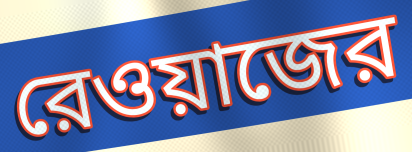
রেওয়াজের